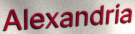
Alexandria